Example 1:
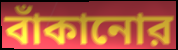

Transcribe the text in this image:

বাঁকানোর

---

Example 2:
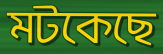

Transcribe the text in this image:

মটকেছে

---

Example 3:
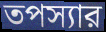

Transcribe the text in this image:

তপস্যার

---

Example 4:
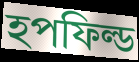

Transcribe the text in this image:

হপফিল্ড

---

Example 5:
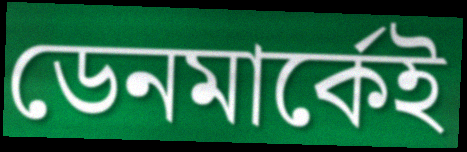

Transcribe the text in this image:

ডেনমার্কেই